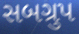
સબગ્રુપ